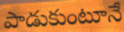
పాడుకుంటూనే